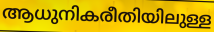
ആധുനികരീതിയിലുള്ള